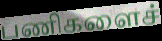
பணிகளைச்